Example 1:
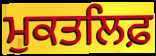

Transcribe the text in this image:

ਮੁਕਤਲਿਫ਼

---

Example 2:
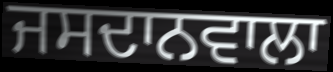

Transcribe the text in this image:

ਜਸਦਾਨਵਾਲਾ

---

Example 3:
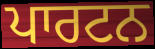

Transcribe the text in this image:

ਪਾਰਟਨ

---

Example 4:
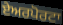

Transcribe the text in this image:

ਏਅਰਪੋਰਟਾ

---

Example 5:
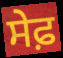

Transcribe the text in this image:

ਸੇਫ਼